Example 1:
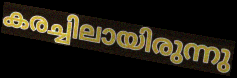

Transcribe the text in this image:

കരച്ചിലായിരുന്നു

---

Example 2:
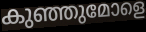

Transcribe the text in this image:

കുഞ്ഞുമോളെ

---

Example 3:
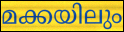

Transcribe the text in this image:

മക്കയിലും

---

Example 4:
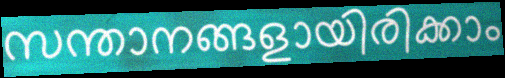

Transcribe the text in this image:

സന്താനങ്ങളായിരിക്കാം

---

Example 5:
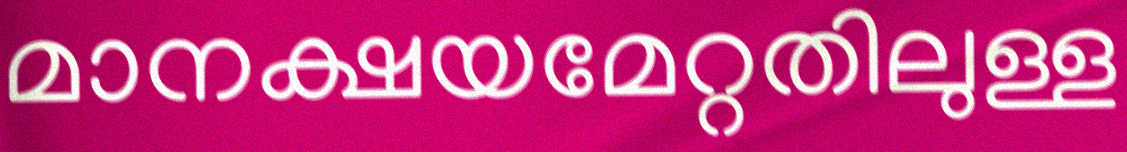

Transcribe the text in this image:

മാനക്ഷയമേറ്റതിലുള്ള